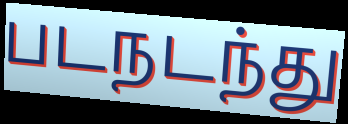
படநடந்து